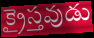
క్రైస్తవుడు